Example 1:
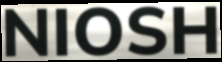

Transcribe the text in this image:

NIOSH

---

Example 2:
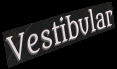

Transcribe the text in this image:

Vestibular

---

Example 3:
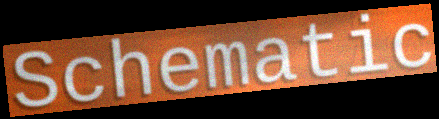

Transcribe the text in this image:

Schematic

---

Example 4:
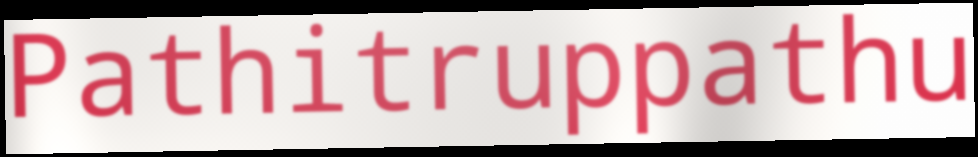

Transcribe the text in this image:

Pathitruppathu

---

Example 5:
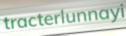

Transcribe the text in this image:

tracterlunnayi